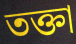
তক্তা